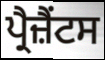
ਪ੍ਰੈਜ਼ੈਂਟਸ